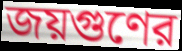
জয়গুণের